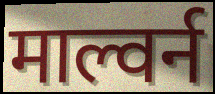
माल्वर्न